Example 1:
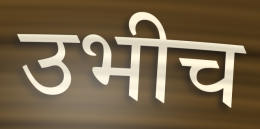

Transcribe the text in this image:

उभीच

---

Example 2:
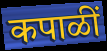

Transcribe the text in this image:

कपाळीं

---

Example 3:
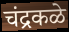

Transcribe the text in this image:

चंद्रकळे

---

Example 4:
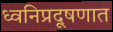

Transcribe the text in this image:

ध्वनिप्रदूषणात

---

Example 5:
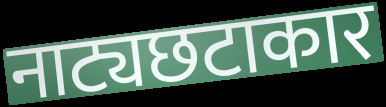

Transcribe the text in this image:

नाट्यछटाकार